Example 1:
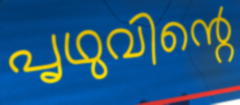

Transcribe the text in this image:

പൃഥുവിന്റെ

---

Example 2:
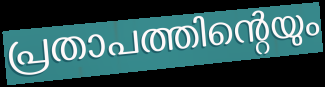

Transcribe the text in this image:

പ്രതാപത്തിന്റെയും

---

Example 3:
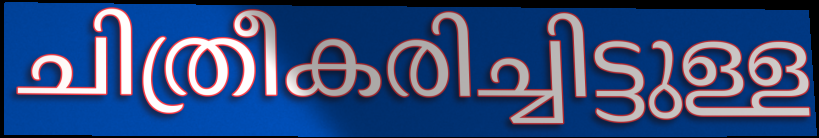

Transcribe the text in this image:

ചിത്രീകരിച്ചിട്ടുള്ള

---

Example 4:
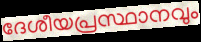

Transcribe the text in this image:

ദേശീയപ്രസ്ഥാനവും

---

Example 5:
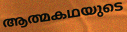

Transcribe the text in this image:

ആത്മകഥയുടെ